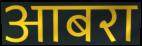
आबरा